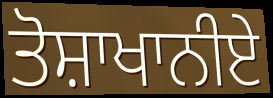
ਤੋਸ਼ਾਖਾਨੀਏ